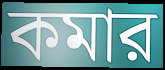
কমার